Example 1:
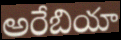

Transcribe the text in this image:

అరేబియా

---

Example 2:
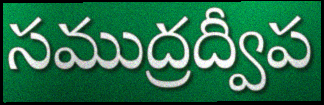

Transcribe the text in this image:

సముద్రద్వీప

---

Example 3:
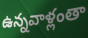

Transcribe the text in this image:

ఉన్నవాళ్లంతా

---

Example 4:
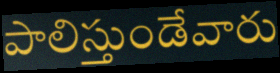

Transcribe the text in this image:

పాలిస్తుండేవారు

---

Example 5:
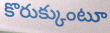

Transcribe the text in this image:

కొరుక్కుంటూ